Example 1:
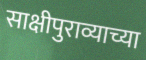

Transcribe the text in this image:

साक्षीपुराव्याच्या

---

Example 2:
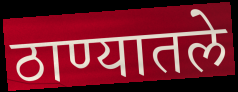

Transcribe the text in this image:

ठाण्यातले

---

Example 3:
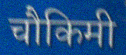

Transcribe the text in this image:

चौकिमी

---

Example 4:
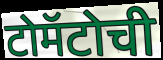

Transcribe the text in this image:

टोमॅटोची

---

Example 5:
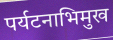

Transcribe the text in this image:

पर्यटनाभिमुख